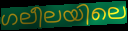
ഗലീലയിലെ